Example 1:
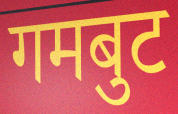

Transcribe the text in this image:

गमबुट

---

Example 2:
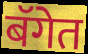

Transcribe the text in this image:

बॅगेत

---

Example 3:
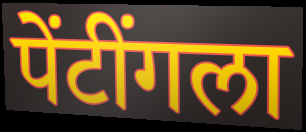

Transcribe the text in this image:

पेंटींगला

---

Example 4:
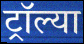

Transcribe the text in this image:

ट्रॉल्या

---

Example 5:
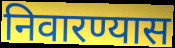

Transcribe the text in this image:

निवारण्यास